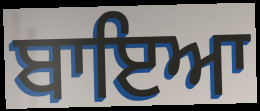
ਬਾਇਆ